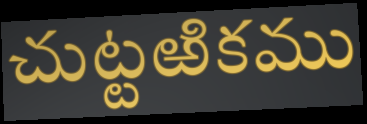
చుట్టఱికము